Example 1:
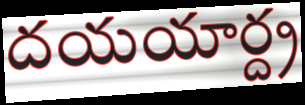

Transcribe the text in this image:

దయయార్ద్ర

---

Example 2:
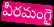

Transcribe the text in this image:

వీరమంగై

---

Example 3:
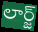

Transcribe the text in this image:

లార్జ్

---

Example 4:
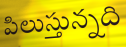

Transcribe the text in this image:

పిలుస్తున్నది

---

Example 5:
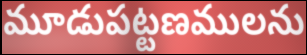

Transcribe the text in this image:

మూడుపట్టణములను